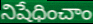
నిషేధించాం